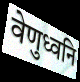
वेणुध्वनि